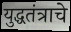
युद्धतंत्राचे